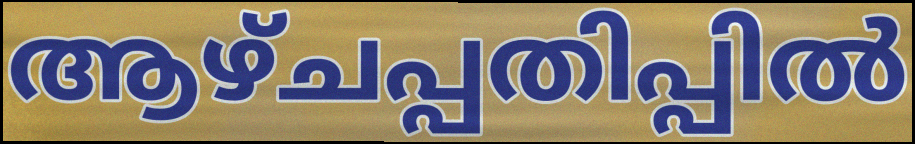
ആഴ്ചപ്പതിപ്പിൽ